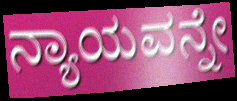
ನ್ಯಾಯವನ್ನೇ